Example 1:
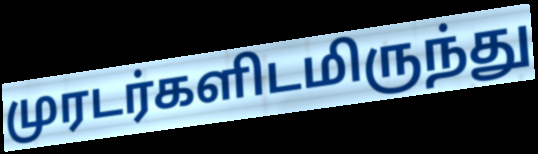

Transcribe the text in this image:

முரடர்களிடமிருந்து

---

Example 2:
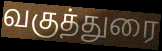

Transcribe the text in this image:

வகுத்துரை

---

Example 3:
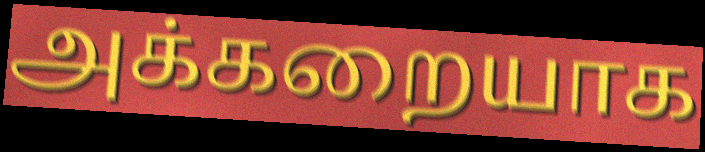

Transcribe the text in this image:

அக்கறையாக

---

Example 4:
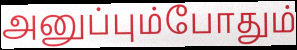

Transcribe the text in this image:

அனுப்பும்போதும்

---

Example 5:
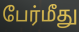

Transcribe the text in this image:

பேர்மீது